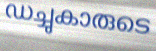
ഡച്ചുകാരുടെ